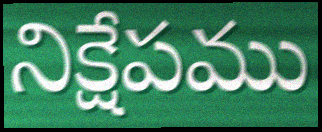
నిక్షేపము